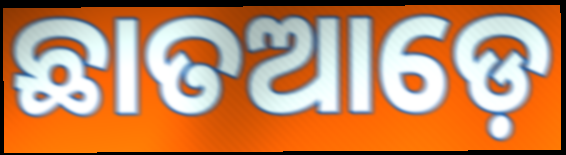
ଛାତଆଡ଼େ